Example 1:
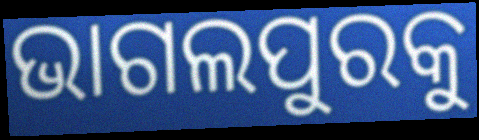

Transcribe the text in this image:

ଭାଗଲପୁରକୁ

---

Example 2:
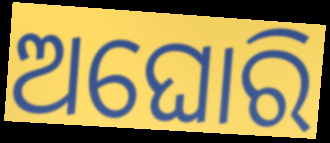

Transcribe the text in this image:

ଅଘୋରି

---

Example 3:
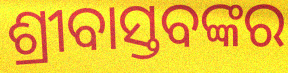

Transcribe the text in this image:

ଶ୍ରୀବାସ୍ତବଙ୍କର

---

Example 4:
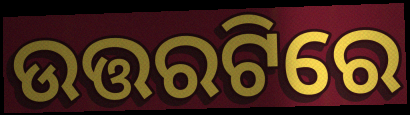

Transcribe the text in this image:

ଉତ୍ତରଟିରେ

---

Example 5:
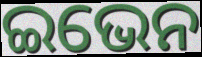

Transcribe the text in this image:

ଇଭେନ